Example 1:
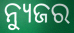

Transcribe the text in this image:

ନ୍ୟୁଜର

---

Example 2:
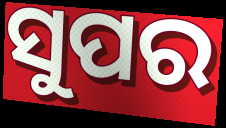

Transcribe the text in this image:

ସୁପର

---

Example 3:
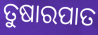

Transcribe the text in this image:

ତୁଷାରପାତ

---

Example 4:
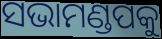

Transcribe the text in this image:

ସଭାମଣ୍ଡପକୁ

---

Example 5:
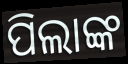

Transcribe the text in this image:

ପିଲାଙ୍କ